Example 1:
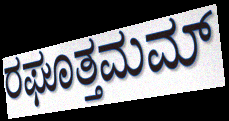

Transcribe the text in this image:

ರಘೂತ್ತಮಮ್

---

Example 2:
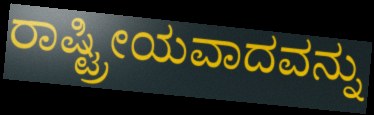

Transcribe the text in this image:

ರಾಷ್ಟ್ರೀಯವಾದವನ್ನು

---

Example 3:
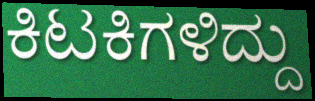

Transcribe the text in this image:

ಕಿಟಕಿಗಳಿದ್ದು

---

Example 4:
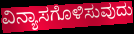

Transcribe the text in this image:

ವಿನ್ಯಾಸಗೊಳಿಸುವುದು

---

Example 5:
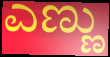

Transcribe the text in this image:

ಎಣ್ಣು